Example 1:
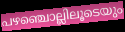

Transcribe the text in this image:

പഴഞ്ചൊല്ലിലൂടെയും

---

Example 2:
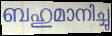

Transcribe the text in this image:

ബഹുമാനിച്ചു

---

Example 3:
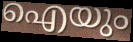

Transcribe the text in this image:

ഐയും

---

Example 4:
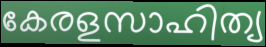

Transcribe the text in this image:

കേരളസാഹിത്യ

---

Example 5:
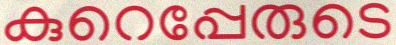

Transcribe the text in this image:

കുറെപ്പേരുടെ